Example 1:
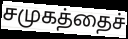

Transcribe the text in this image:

சமுகத்தைச்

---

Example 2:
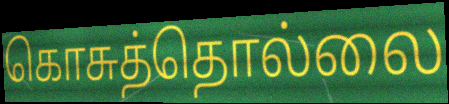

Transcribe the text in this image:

கொசுத்தொல்லை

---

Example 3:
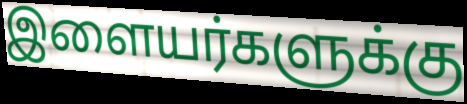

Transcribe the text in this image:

இளையர்களுக்கு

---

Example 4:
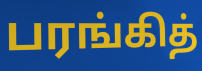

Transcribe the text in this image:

பரங்கித்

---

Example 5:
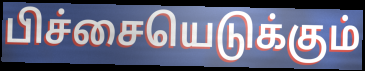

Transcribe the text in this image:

பிச்சையெடுக்கும்